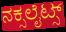
ನಕ್ಸಲೈಟ್ಸ್